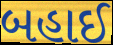
બહાઈ